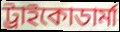
ট্রাইকোডার্মা